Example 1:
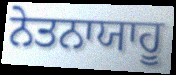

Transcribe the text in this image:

ਨੇਤਨਾਯਾਹੂ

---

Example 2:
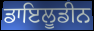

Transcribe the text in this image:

ਡਾਇਲੂਡੀਨ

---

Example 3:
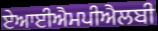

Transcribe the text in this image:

ਏਆਈਐਮਪੀਐਲਬੀ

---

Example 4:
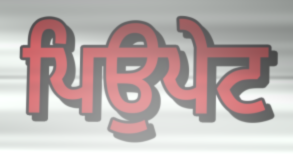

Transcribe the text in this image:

ਪਿਉਪੇਟ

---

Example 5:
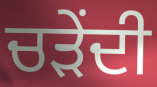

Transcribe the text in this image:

ਚੜੇਂਦੀ